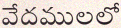
వేదములలో